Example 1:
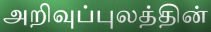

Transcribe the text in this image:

அறிவுப்புலத்தின்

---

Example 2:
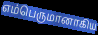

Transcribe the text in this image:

எம்பெருமானாகிய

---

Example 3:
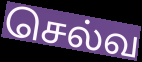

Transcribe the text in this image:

செல்வ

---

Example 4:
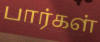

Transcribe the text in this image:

பார்கள்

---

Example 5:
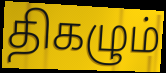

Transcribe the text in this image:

திகழும்